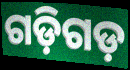
ଗଡ଼ିଗଡ଼